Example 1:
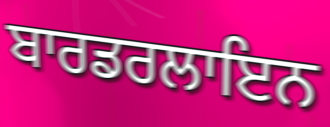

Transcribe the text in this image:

ਬਾਰਡਰਲਾਇਨ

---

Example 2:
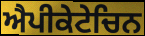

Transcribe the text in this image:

ਐਪੀਕੇਟੇਚਿਨ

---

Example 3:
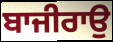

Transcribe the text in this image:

ਬਾਜੀਰਾਉ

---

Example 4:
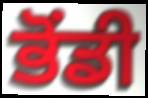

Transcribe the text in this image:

ਭੋਂਡੀ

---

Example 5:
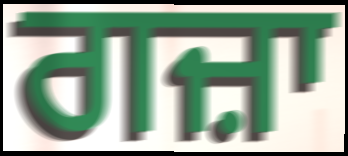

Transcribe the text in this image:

ਗਜ਼ਾ